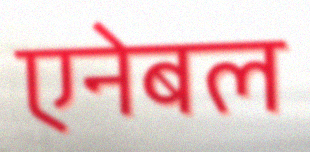
एनेबल